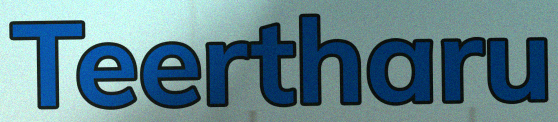
Teertharu